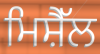
ਮਿਸ਼ੈੱਲ